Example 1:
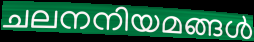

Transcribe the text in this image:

ചലനനിയമങ്ങൾ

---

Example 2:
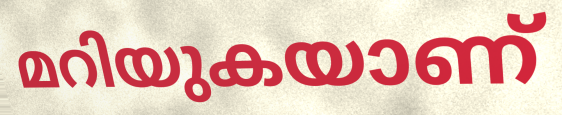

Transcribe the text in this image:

മറിയുകയാണ്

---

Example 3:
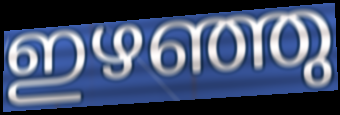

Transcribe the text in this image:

ഇഴഞ്ഞു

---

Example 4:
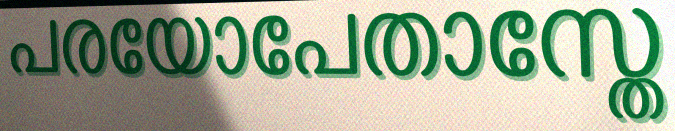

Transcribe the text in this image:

പരയോപേതാസ്തേ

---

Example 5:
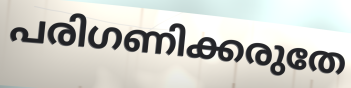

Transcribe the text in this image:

പരിഗണിക്കരുതേ